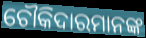
ଚୌକିଦାରମାନଙ୍କ